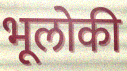
भूलोकी